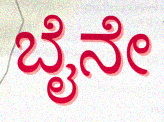
ಬೈನೇ